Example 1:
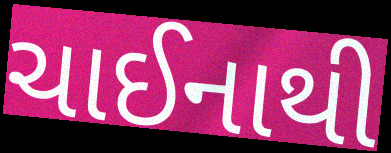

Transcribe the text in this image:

ચાઈનાથી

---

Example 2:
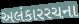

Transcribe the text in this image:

અલંકારરચના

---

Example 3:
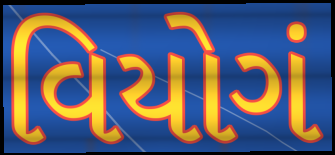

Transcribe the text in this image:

વિયોગં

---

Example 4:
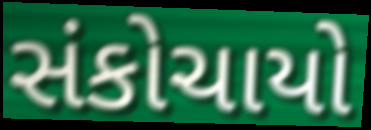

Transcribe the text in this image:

સંકોચાયો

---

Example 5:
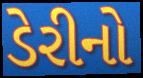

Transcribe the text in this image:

ડેરીનો